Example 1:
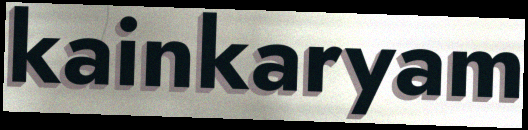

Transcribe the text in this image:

kainkaryam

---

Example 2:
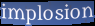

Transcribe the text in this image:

implosion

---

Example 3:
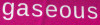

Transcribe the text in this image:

gaseous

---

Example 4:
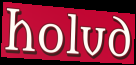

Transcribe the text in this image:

holud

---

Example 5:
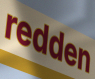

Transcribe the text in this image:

redden